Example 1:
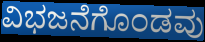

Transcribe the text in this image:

ವಿಭಜನೆಗೊಂಡವು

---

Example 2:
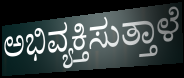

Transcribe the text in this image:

ಅಭಿವ್ಯಕ್ತಿಸುತ್ತಾಳೆ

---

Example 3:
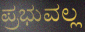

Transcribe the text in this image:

ಪ್ರಭುವಲ್ಲ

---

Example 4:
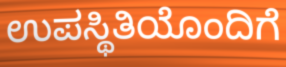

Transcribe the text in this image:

ಉಪಸ್ಥಿತಿಯೊಂದಿಗೆ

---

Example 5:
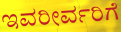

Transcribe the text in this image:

ಇವರೀರ್ವರಿಗೆ